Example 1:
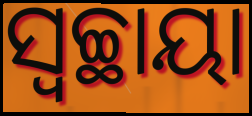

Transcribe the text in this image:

ସ୍ୱଚ୍ଛାୟା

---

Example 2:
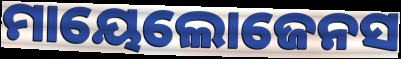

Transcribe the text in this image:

ମାୟେଲୋଜେନସ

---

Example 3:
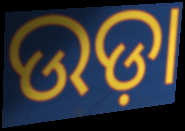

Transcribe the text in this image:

ଉଡ଼ା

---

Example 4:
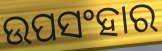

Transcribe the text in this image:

ଉପସଂହାର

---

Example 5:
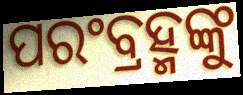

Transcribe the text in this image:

ପରଂବ୍ରହ୍ମଙ୍କୁ